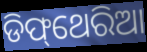
ଡିଫ୍‌ଥେରିଆ